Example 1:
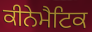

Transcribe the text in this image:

ਕੀਨੇਮੈਟਿਕ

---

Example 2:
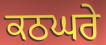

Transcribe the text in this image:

ਕਠਘਰੇ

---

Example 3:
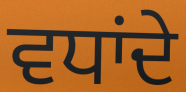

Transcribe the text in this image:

ਵਧਾਂਦੇ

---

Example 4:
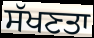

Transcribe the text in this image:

ਸੱਖਣਤਾ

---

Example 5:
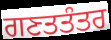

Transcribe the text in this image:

ਗਣਤਤੰਤਰ